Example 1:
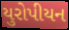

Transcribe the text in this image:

યુરોપીયન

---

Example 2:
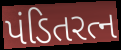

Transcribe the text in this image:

પંડિતરત્ન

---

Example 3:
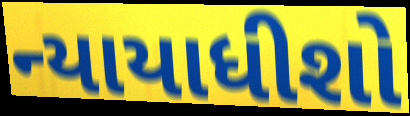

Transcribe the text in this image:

ન્યાયાધીશો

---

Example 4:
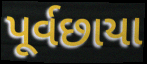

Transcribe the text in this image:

પૂર્વછાયા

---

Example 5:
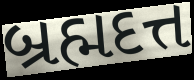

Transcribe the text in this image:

બ્રહ્મદત્ત